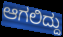
ಆಗಲಿದ್ದು